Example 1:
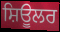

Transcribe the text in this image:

ਸ਼ਿਊਲਰ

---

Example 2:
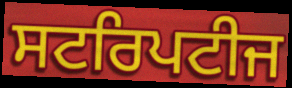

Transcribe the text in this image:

ਸਟਰਿਪਟੀਜ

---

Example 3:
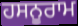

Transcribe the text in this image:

ਹਸਨੂਰਾਮ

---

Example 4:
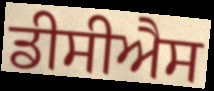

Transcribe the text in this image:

ਡੀਸੀਐਸ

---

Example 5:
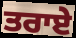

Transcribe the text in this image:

ਤਰਾਏ